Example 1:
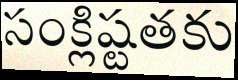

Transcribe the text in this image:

సంక్లిష్టతకు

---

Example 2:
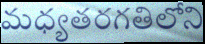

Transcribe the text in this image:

మధ్యతరగతిలోని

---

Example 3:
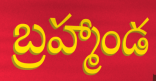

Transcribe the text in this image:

బ్రహ్మాండ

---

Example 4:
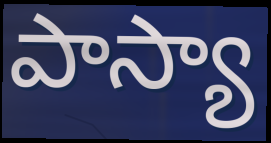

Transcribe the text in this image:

పాస్యా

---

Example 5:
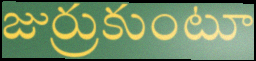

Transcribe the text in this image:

జుర్రుకుంటూ